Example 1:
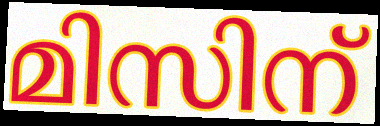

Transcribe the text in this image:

മിസിന്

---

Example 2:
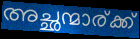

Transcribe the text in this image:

അച്ഛന്മാര്ക്ക്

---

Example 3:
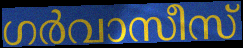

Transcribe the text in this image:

ഗർവാസീസ്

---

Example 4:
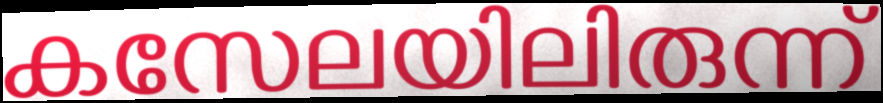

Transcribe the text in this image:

കസേലയിലിരുന്ന്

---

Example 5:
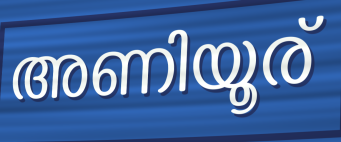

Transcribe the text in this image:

അണിയൂര്